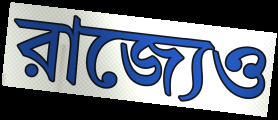
রাজ্যেও